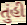
તુંહી